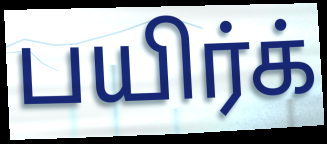
பயிர்க்